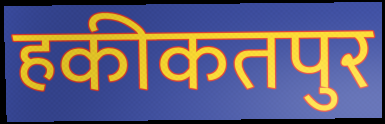
हकीकतपुर